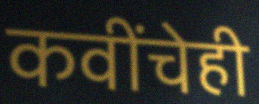
कवींचेही